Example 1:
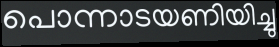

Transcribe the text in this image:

പൊന്നാടയണിയിച്ചു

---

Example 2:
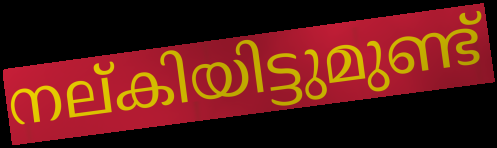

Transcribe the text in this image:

നല്കിയിട്ടുമുണ്ട്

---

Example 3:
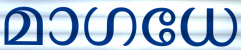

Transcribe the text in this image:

മാഗധേ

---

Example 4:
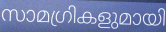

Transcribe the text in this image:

സാമഗ്രികളുമായി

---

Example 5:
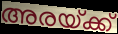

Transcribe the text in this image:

അരയ്‌ക്ക്